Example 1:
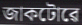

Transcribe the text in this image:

জাকটোৱে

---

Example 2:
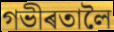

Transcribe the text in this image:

গভীৰতালৈ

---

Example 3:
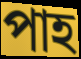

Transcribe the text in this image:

পাহ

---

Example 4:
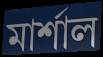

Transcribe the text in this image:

মাৰ্শাল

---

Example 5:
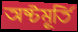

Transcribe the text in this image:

অষ্টমূৰ্তি